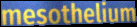
mesothelium